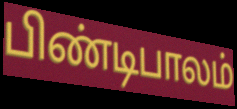
பிண்டிபாலம்